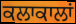
ਕਲਾਕਾਲਾਂ